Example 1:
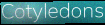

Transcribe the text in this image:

Cotyledons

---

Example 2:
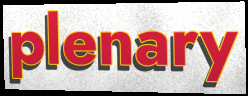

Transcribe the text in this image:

plenary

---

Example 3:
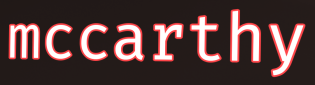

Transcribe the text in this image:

mccarthy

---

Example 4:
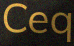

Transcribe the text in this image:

Ceq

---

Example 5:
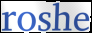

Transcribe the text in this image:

roshe